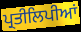
ਪ੍ਰਤੀਲਿਪੀਆਂ